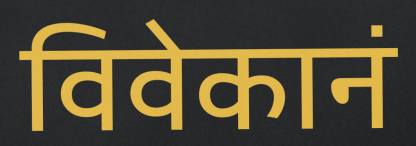
विवेकानं